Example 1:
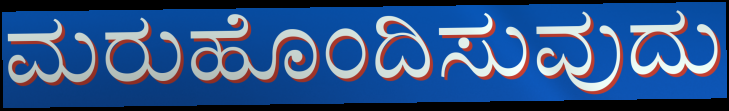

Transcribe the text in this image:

ಮರುಹೊಂದಿಸುವುದು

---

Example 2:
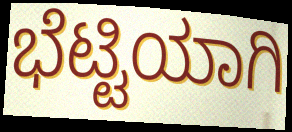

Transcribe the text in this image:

ಭೆಟ್ಟಿಯಾಗಿ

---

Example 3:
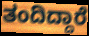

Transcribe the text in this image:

ತಂದಿದ್ದಾರೆ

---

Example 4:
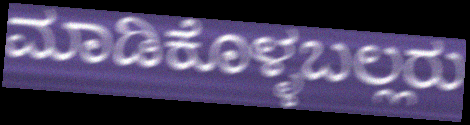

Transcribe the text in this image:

ಮಾಡಿಕೊಳ್ಳಬಲ್ಲರು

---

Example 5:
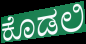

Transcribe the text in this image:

ಕೊಡಲಿ